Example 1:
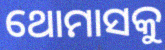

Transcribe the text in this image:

ଥୋମାସକୁ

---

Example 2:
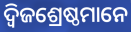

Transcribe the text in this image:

ଦ୍ୱିଜଶ୍ରେଷ୍ଠମାନେ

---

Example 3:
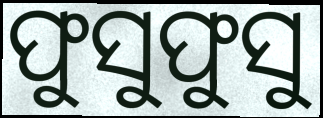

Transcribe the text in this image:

ଫୁସୁଫୁସୁ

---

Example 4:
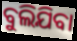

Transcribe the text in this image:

ବୁଲିଯିବା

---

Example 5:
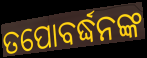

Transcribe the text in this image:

ତପୋବର୍ଦ୍ଧନଙ୍କ